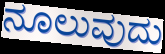
ನೂಲುವುದು